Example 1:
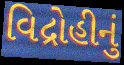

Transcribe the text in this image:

વિદ્રોહીનું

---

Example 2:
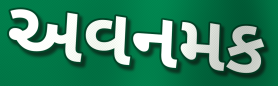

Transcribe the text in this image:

અવનમક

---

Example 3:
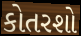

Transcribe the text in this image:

કોતરશો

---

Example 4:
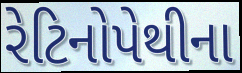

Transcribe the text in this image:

રેટિનોપેથીના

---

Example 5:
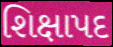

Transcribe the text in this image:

શિક્ષાપદ